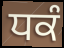
ਧਕੰ